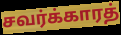
சவர்க்காரத்